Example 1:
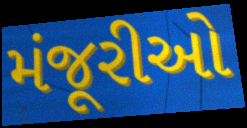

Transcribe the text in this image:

મંજૂરીઓ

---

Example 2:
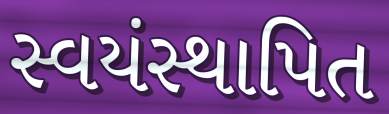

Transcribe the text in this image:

સ્વયંસ્થાપિત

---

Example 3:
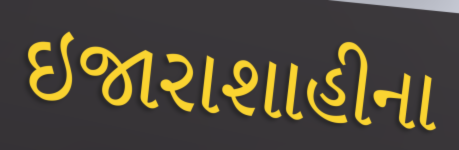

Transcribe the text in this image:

ઇજારાશાહીના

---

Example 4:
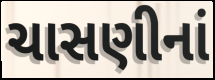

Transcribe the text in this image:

ચાસણીનાં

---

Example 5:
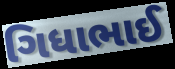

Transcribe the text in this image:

ગિધાભાઈ